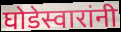
घोडेस्वारांनी